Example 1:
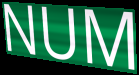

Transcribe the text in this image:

NUM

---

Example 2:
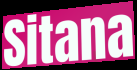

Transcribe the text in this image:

Sitana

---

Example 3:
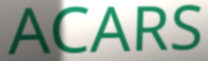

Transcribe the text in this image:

ACARS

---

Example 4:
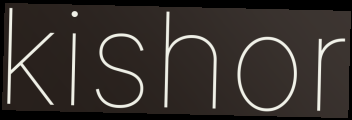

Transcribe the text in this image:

kishor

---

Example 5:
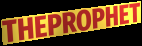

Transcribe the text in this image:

THEPROPHET